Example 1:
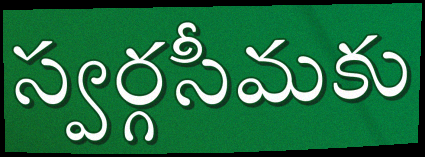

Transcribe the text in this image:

స్వర్గసీమకు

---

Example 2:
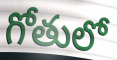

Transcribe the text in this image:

గోతులో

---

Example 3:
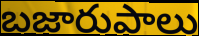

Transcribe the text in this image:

బజారుపాలు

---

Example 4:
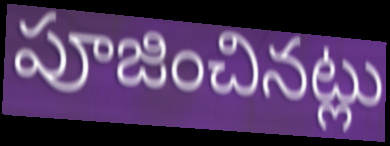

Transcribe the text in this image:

పూజించినట్లు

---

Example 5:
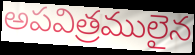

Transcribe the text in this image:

అపవిత్రములైన